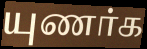
யுணர்க